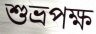
শুভ্রপক্ষ